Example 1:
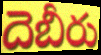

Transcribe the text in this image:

దెబీరు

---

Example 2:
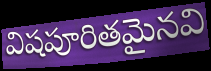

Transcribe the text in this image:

విషపూరితమైనవి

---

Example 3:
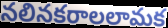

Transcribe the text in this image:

నలినకరాలలామక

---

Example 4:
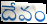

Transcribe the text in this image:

దేవం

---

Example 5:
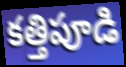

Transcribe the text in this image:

కత్తిపూడి